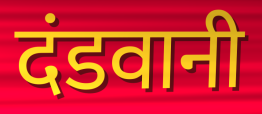
दंडवानी